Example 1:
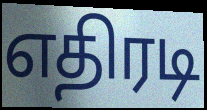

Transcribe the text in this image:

எதிரடி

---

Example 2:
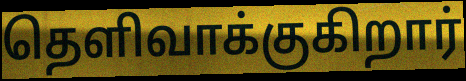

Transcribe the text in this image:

தெளிவாக்குகிறார்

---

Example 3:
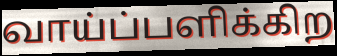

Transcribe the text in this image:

வாய்ப்பளிக்கிற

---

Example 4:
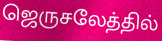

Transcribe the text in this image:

ஜெருசலேத்தில்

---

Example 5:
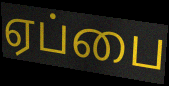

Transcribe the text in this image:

ஏப்பை